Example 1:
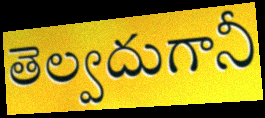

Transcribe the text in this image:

తెల్వదుగానీ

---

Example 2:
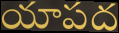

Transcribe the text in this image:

యాపద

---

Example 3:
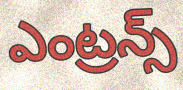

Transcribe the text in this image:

ఎంట్రన్స్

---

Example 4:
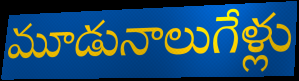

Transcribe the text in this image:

మూడునాలుగేళ్లు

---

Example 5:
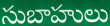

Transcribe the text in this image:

సుబాహులు